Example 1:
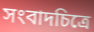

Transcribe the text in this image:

সংবাদচিত্রে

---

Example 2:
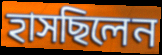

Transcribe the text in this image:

হাসছিলেন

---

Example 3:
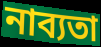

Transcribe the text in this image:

নাব্যতা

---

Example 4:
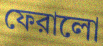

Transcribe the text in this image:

ফেরালো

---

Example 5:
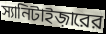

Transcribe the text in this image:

স্যানিটাইজ়ারের